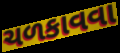
ચળકાવવા